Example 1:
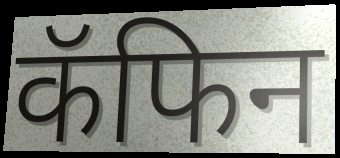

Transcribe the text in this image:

कॅफिन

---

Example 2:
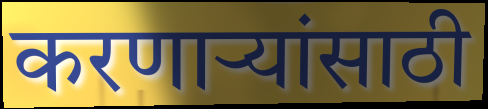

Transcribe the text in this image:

करणाऱ्यांसाठी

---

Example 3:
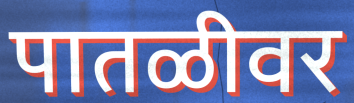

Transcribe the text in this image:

पातळीवर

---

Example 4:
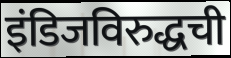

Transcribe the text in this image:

इंडिजविरुद्धची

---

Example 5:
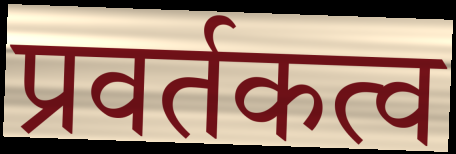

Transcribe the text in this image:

प्रवर्तकत्व